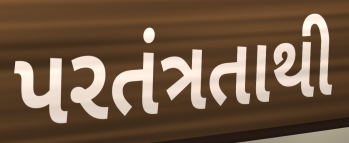
પરતંત્રતાથી